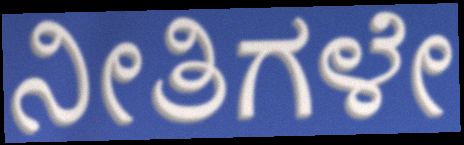
ನೀತಿಗಳೇ